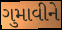
ગુમાવીને